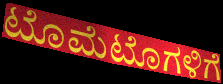
ಟೊಮೆಟೊಗಳಿಗೆ